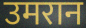
उमरान